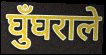
घुँघराले